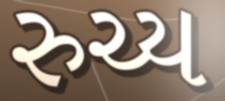
રુચ્ય